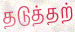
தடுத்தற்